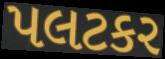
પલટકર